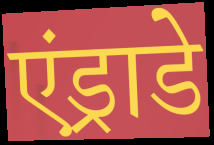
एंड्राडे